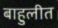
बाहुलीत